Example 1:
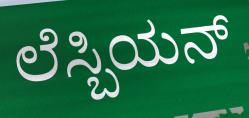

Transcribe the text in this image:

ಲೆಸ್ಬಿಯನ್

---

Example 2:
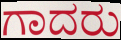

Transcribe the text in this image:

ಗಾದರು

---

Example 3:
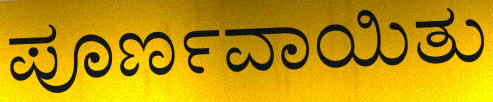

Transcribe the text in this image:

ಪೂರ್ಣವಾಯಿತು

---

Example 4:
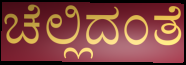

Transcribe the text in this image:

ಚೆಲ್ಲಿದಂತೆ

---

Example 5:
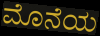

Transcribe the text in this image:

ಮೊನೆಯ